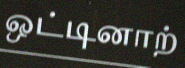
ஒட்டினாற்